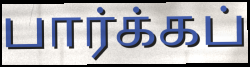
பார்க்கப்